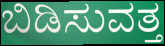
ಬಿಡಿಸುವತ್ತ